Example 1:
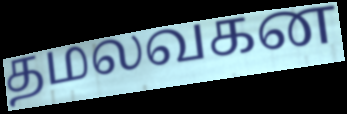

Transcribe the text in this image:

தமலவகன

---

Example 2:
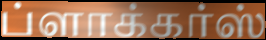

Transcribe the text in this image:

ப்ளாக்கர்ஸ்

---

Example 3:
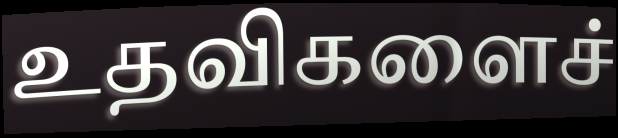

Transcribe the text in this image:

உதவிகளைச்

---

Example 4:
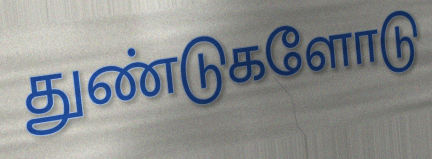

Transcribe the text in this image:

துண்டுகளோடு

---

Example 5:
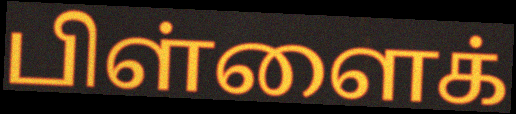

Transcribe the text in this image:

பிள்ளைக்